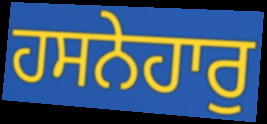
ਹਸਨੇਹਾਰੁ